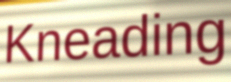
Kneading